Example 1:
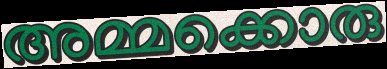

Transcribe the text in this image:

അമ്മക്കൊരു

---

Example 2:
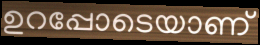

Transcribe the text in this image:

ഉറപ്പോടെയാണ്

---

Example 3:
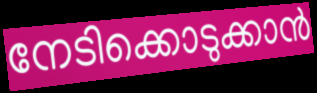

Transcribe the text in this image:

നേടിക്കൊടുക്കാൻ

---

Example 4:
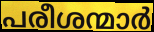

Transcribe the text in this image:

പരീശന്മാർ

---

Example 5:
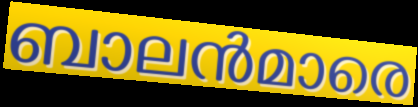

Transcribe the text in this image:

ബാലൻമാരെ